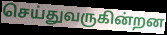
செய்துவருகின்றன